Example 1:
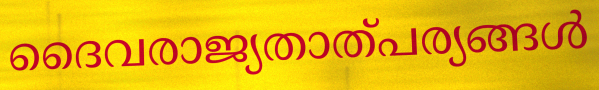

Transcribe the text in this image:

ദൈവരാജ്യതാത്പര്യങ്ങൾ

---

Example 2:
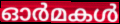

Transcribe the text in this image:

ഓർമകൾ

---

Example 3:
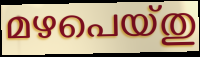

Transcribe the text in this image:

മഴപെയ്തു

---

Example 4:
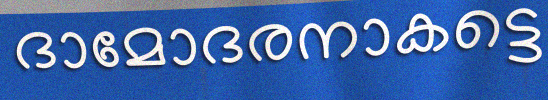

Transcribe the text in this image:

ദാമോദരനാകട്ടെ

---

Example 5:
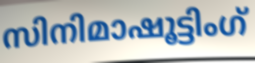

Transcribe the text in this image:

സിനിമാഷൂട്ടിംഗ്